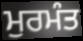
ਮੁਰਮੰਤ